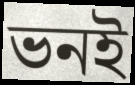
ভনই